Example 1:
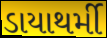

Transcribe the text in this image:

ડાયાથર્મી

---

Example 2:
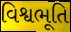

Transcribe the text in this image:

વિશ્વભૂતિ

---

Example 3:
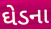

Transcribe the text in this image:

ઘેડના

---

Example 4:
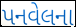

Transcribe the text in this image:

પનવેલના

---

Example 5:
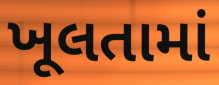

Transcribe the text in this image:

ખૂલતામાં